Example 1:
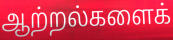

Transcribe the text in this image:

ஆற்றல்களைக்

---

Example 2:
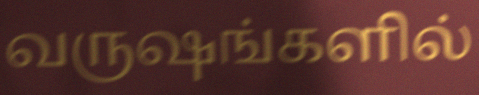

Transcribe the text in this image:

வருஷங்களில்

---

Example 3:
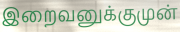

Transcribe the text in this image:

இறைவனுக்குமுன்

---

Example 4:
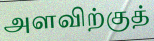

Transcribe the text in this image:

அளவிற்குத்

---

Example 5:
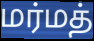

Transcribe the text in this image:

மர்மத்